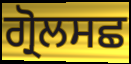
ਗ੍ਰੋਲਸਛ